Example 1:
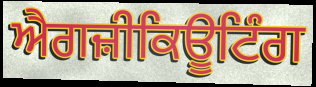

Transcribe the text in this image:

ਐਗਜ਼ੀਕਿਊਟਿੰਗ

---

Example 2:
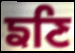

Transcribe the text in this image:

ਙਣਿ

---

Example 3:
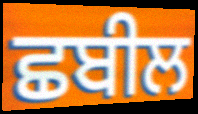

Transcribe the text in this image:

ਛਬੀਲ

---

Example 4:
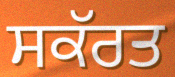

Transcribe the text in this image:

ਸਕੱਰਤ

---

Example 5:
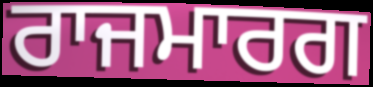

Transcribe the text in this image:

ਰਾਜਮਾਰਗ